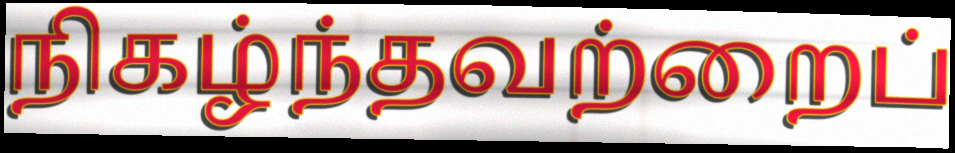
நிகழ்ந்தவற்றைப்